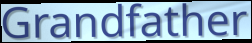
Grandfather